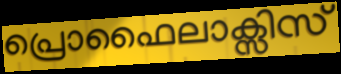
പ്രൊഫൈലാക്സിസ്